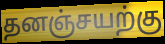
தனஞ்சயற்கு